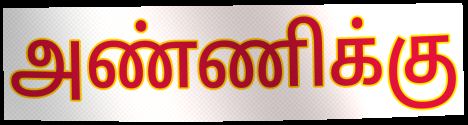
அண்ணிக்கு